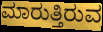
ಮಾರುತ್ತಿರುವ